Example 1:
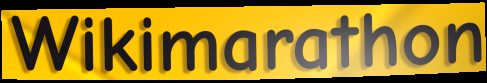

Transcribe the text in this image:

Wikimarathon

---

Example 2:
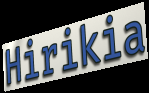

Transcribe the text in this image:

Hirikia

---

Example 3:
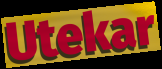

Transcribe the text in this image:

Utekar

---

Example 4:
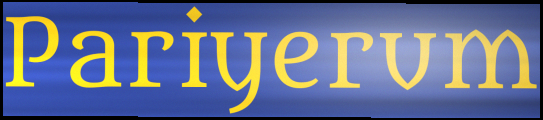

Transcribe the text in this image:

Pariyerum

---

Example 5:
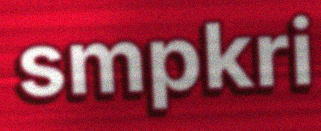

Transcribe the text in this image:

smpkri